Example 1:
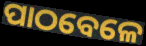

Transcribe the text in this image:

ପାଠବେଳେ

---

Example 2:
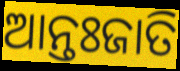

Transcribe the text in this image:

ଆନ୍ତଃଜାତି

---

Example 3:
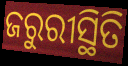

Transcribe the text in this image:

ଜରୁରୀସ୍ଥିତି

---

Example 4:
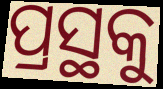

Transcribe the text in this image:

ପ୍ରସ୍ଥକୁ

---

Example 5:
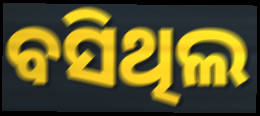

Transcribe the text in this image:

ବସିଥିଲ